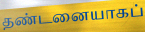
தண்டனையாகப்